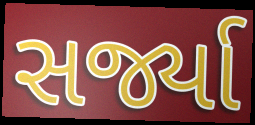
સર્જ્યા